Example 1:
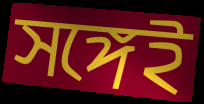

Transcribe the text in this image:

সঙ্গেই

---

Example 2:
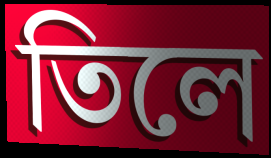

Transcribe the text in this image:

তিলে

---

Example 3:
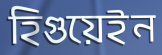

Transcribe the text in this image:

হিগুয়েইন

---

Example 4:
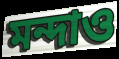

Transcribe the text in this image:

মন্দাও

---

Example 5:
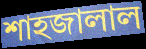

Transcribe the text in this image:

শাহজালাল